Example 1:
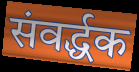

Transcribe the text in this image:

संवर्द्धक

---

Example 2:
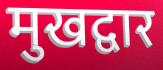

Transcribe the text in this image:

मुखद्वार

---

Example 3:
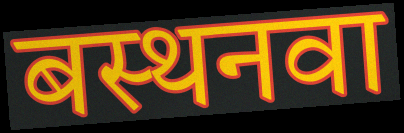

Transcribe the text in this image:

बस्थनवा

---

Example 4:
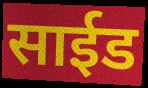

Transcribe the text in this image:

साईड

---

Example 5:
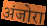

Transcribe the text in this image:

अंजोरा